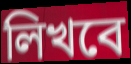
লিখবে